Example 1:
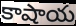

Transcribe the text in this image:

కాషాయ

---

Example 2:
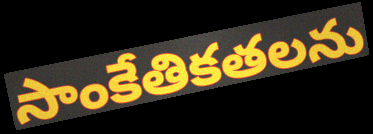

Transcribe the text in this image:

సాంకేతికతలను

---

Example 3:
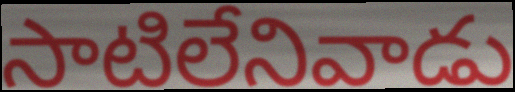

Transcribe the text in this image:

సాటిలేనివాడు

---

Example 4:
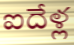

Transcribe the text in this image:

ఐదేళ్ల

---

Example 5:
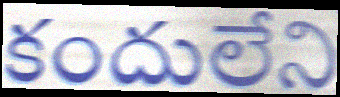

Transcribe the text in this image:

కందులేని